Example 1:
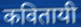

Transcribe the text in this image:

कवितायी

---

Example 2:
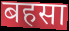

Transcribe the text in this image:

बहसा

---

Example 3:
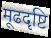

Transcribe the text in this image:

मूढदृष्टि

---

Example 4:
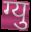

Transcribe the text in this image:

ग्यु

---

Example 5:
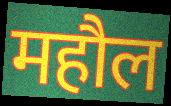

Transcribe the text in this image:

महौल